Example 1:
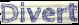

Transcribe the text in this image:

Divert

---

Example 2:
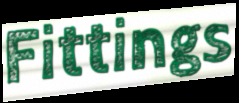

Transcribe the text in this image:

Fittings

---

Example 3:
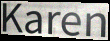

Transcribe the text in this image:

Karen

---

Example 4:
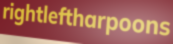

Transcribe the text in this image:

rightleftharpoons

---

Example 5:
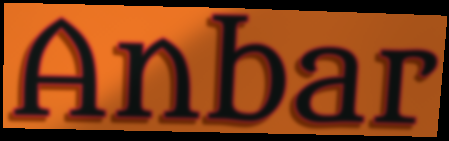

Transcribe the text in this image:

Anbar